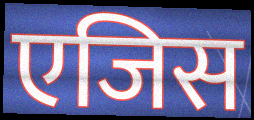
एजिस